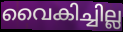
വൈകിച്ചില്ല